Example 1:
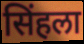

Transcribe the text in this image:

सिंहला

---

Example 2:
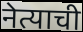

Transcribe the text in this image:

नेत्याची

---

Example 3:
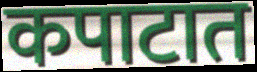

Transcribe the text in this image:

कपाटात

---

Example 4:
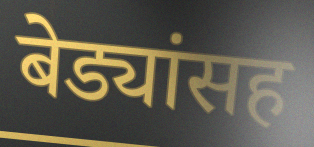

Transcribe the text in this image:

बेड्यांसह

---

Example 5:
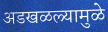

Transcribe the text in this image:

अडखळल्यामुळे